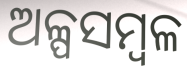
ଅଳ୍ପସମ୍ବଳ